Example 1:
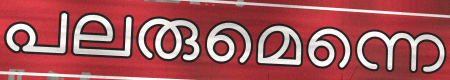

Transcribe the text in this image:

പലരുമെന്നെ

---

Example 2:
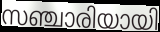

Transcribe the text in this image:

സഞ്ചാരിയായി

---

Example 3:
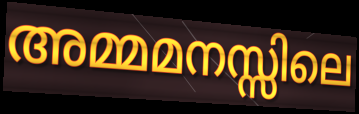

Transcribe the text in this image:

അമ്മമനസ്സിലെ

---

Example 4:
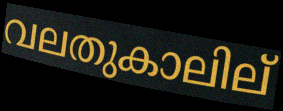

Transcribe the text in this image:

വലതുകാലില്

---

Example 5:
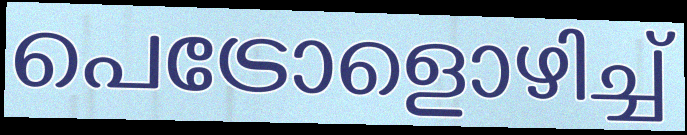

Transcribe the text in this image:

പെട്രോളൊഴിച്ച്